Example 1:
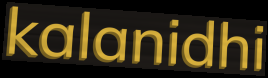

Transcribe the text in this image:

kalanidhi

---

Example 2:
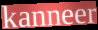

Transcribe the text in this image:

kanneer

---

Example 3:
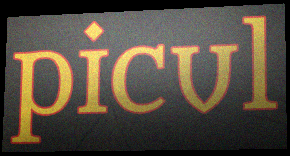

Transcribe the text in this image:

picul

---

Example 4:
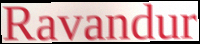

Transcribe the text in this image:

Ravandur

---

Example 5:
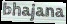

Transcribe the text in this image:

bhajana